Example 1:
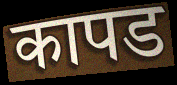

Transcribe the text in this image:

कापड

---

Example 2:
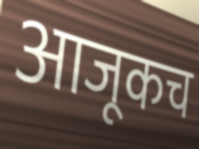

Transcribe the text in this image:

आजूकच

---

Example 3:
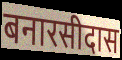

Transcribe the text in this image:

बनारसीदास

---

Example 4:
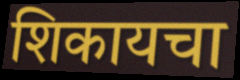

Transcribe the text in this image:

शिकायचा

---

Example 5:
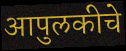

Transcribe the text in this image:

आपुलकीचे